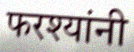
फरश्यांनी